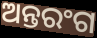
ଅନ୍ତରଂଗ